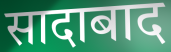
सादाबाद